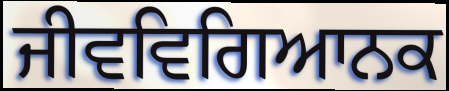
ਜੀਵਵਿਗਿਆਨਕ